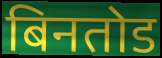
बिनतोड